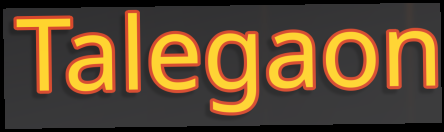
Talegaon